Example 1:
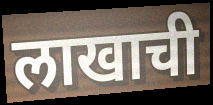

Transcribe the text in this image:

लाखाची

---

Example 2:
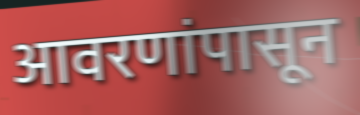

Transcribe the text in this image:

आवरणांपासून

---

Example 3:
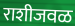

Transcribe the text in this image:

राशीजवळ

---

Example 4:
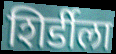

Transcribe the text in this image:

शिर्डीला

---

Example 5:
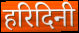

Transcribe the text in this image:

हरिदिनी